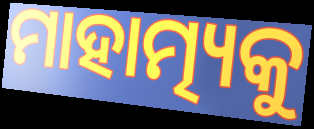
ମାହାତ୍ମ୍ୟକୁ